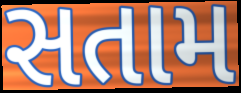
સતામ